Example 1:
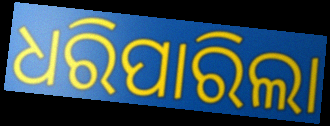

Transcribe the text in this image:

ଧରିପାରିଲା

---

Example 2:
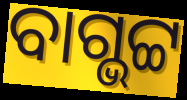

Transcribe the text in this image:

ବାଗ୍ଭଟ୍ଟ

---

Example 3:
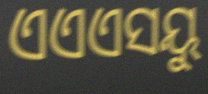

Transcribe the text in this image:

ଏଏଏସୟୁ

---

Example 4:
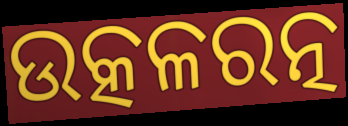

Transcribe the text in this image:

ଉତ୍କଳରତ୍ନ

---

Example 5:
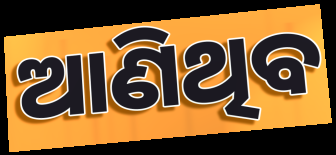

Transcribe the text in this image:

ଆଣିଥିବ